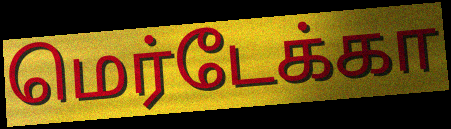
மெர்டேக்கா